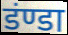
डंण्डा